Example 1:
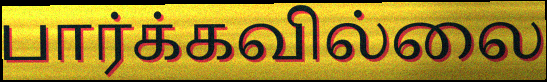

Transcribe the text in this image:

பார்க்கவில்லை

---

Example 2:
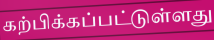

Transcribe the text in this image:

கற்பிக்கப்பட்டுள்ளது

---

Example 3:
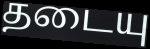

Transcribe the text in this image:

தடையு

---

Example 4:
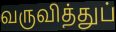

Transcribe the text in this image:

வருவித்துப்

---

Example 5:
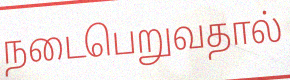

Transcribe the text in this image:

நடைபெறுவதால்